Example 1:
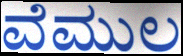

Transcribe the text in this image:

ವೆಮುಲ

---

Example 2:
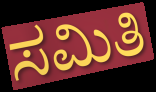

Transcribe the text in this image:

ಸಮಿತಿ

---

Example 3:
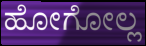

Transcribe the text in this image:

ಹೋಗೋಲ್ಲ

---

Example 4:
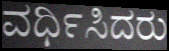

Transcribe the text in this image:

ವರ್ಧಿಸಿದರು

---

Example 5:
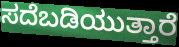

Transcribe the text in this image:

ಸದೆಬಡಿಯುತ್ತಾರೆ